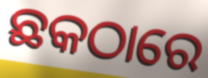
ଛକଠାରେ